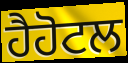
ਹੈਹੋਟਲ